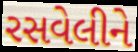
રસવેલીને